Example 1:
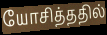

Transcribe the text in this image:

யோசித்ததில்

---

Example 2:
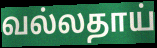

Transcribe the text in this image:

வல்லதாய்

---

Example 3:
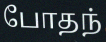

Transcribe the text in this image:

போதந்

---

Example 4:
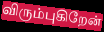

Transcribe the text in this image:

விரும்புகிறேன்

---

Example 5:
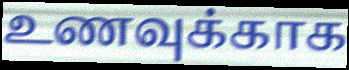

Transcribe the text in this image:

உணவுக்காக